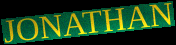
JONATHAN